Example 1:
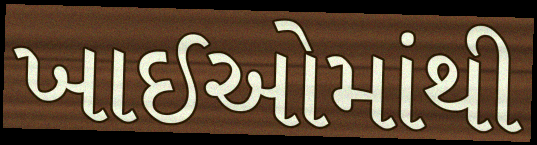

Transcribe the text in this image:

ખાઈઓમાંથી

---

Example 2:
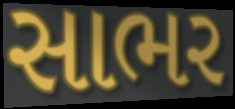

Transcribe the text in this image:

સાભર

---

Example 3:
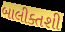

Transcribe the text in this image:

બાલીક્તશી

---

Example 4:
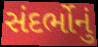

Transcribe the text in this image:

સંદર્ભોનું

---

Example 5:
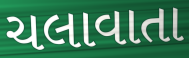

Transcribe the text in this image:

ચલાવાતા